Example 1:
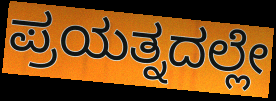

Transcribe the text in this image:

ಪ್ರಯತ್ನದಲ್ಲೇ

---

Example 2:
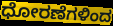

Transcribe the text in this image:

ಧೋರಣೆಗಳಿಂದ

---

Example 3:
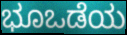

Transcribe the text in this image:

ಭೂಒಡೆಯ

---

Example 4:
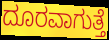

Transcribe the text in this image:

ದೂರವಾಗುತ್ತೆ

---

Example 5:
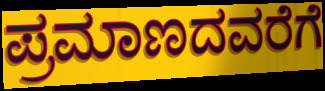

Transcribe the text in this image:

ಪ್ರಮಾಣದವರೆಗೆ